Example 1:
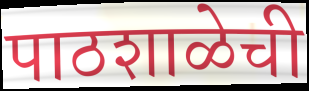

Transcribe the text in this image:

पाठशाळेची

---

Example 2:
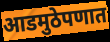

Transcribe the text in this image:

आडमुठेपणात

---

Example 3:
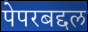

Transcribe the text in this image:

पेपरबद्दल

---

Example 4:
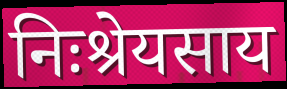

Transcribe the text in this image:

निःश्रेयसाय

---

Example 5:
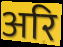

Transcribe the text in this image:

अरि